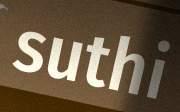
suthi